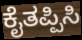
ಕೈತಪ್ಪಿಸಿ